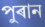
পুৰান